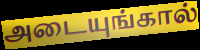
அடையுங்கால்